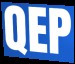
QEP